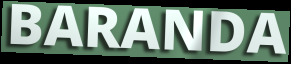
BARANDA